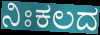
ನಿಃಕಲದ